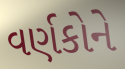
વર્ણકોને